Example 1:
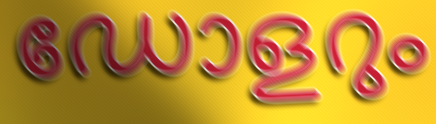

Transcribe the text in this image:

ഡോളറും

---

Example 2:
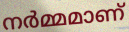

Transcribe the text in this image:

നർമ്മമാണ്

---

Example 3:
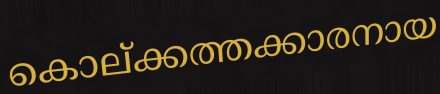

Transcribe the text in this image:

കൊല്ക്കത്തക്കാരനായ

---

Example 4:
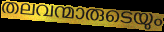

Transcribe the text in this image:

തലവന്മാരുടെയും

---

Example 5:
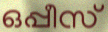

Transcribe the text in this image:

ഒപ്പീസ്